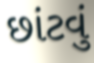
છાંટવું